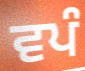
ਵਪੰ